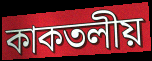
কাকতলীয়